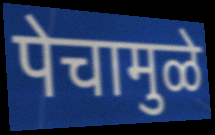
पेचामुळे